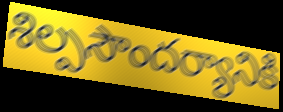
శిల్పసౌందర్యానికి